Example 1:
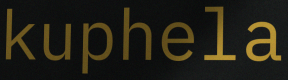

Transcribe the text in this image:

kuphela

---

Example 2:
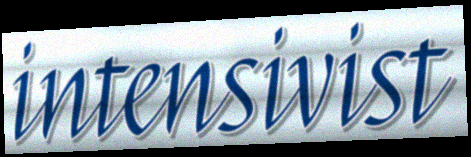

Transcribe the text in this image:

intensivist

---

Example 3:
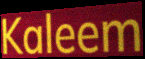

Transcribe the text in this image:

Kaleem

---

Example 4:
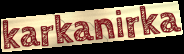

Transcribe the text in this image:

karkanirka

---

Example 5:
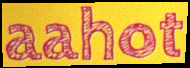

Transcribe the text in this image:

aahot